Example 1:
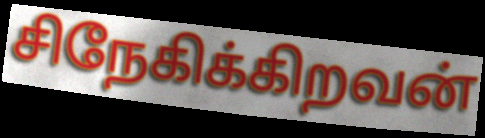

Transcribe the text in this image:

சிநேகிக்கிறவன்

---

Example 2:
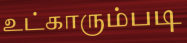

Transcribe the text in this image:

உட்காரும்படி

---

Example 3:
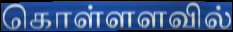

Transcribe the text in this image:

கொள்ளளவில்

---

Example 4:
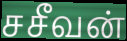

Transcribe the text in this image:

சசீவன்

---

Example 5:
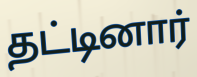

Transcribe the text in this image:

தட்டினார்